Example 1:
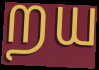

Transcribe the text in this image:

றய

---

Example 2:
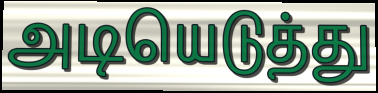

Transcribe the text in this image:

அடியெடுத்து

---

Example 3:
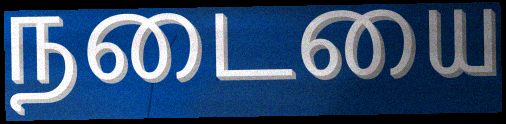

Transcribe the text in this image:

நடையை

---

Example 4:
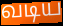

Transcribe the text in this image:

வடிய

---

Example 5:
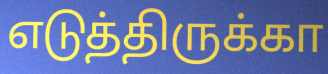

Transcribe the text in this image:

எடுத்திருக்கா